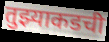
तुझ्याकडची